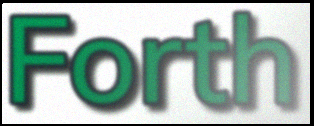
Forth